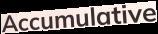
Accumulative